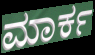
ಮಾರ್ಕ